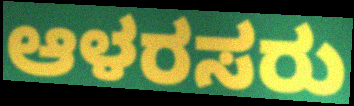
ಆಳರಸರು